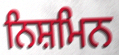
ਨਿਸ਼ਮਿਨ